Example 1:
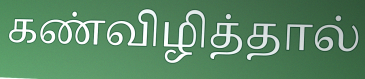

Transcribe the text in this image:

கண்விழித்தால்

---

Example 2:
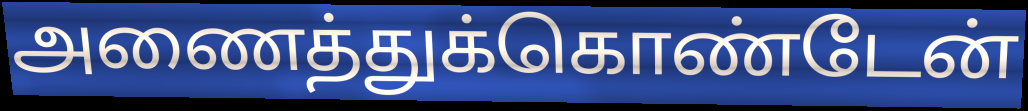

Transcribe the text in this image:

அணைத்துக்கொண்டேன்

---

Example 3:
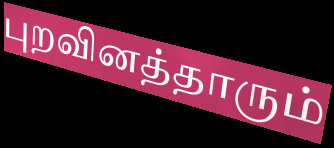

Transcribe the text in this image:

புறவினத்தாரும்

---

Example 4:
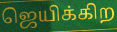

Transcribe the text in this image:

ஜெயிக்கிற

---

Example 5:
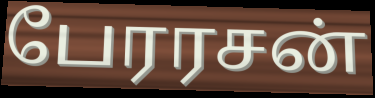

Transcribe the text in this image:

பேரரசன்